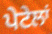
ਪੇਟੇਲਾਂ